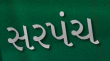
સરપંચ